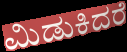
ಮಿಡುಕಿದರೆ